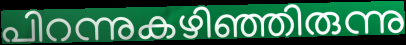
പിറന്നുകഴിഞ്ഞിരുന്നു